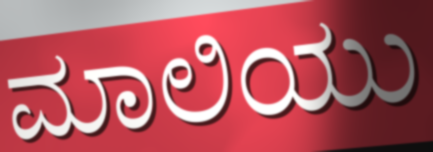
ಮಾಲಿಯು